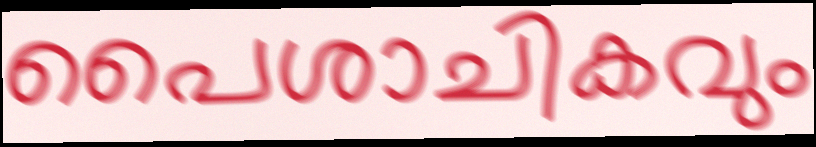
പൈശാചികവും